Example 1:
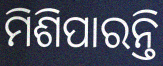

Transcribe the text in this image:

ମିଶିପାରନ୍ତି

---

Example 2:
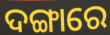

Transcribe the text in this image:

ଦଙ୍ଗାରେ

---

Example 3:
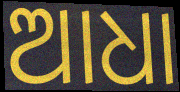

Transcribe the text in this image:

ଆଧା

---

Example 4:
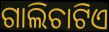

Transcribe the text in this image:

ଗାଲିଚାଟିଏ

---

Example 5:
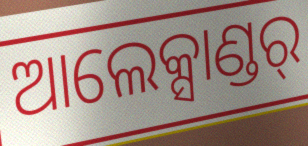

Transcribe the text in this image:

ଆଲେକ୍ସାଣ୍ଡର୍